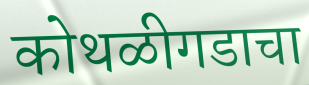
कोथळीगडाचा